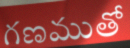
గణముతో